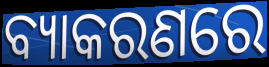
ବ୍ୟାକରଣରେ